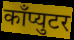
काँप्युटर